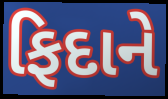
ફિદાને